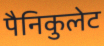
पैनिकुलेट